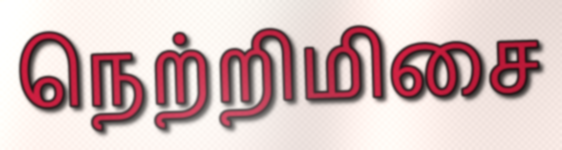
நெற்றிமிசை